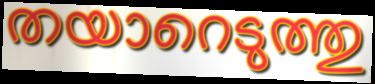
തയാറെടുത്തു